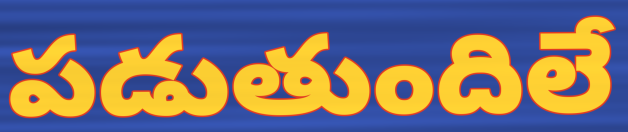
పడుతుందిలే